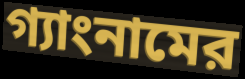
গ্যাংনামের